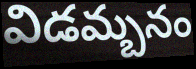
విడమ్బనం